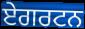
ਏਗਰਟਨ